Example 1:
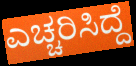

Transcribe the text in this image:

ಎಚ್ಚರಿಸಿದ್ದೆ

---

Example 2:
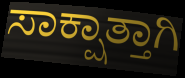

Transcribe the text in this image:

ಸಾಕ್ಷಾತ್ತಾಗಿ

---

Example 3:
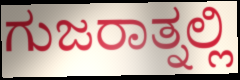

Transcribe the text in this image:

ಗುಜರಾತ್ನಲ್ಲಿ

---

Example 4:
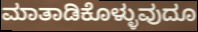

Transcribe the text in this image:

ಮಾತಾಡಿಕೊಳ್ಳುವುದೂ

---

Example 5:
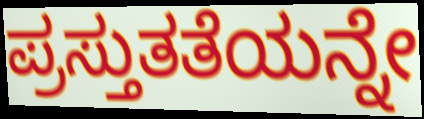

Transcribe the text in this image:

ಪ್ರಸ್ತುತತೆಯನ್ನೇ